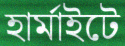
হাৰ্মাইটে